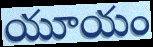
యూయం